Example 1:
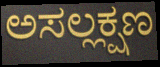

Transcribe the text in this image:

ಅಸಲ್ಲಕ್ಷಣ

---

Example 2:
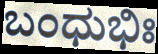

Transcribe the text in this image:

ಬಂಧುಭಿಃ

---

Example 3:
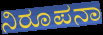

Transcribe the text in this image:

ನಿರೂಪನಾ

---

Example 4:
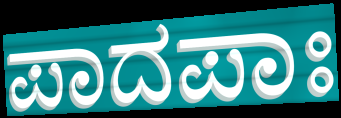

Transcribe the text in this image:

ಪಾದಪಾಃ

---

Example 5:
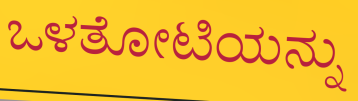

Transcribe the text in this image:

ಒಳತೋಟಿಯನ್ನು